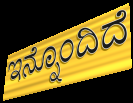
ಇನ್ನೊಂದಿದೆ